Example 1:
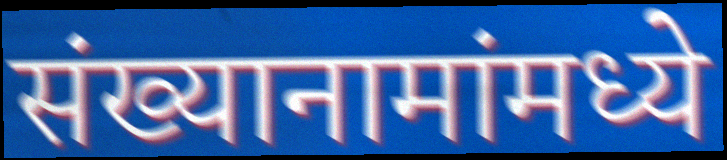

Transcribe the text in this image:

संख्यानामांमध्ये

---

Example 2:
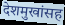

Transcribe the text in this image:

देशमुखांसह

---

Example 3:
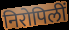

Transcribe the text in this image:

निरोपिलीं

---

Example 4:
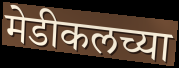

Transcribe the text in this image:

मेडीकलच्या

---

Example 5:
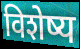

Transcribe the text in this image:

विशेष्य